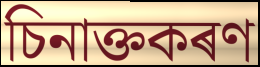
চিনাক্তকৰণ